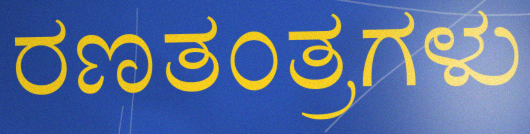
ರಣತಂತ್ರಗಳು